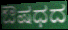
ಔಷಧದ